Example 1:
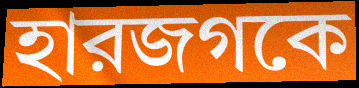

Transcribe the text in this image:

হারজগকে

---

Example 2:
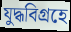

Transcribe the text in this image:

যুদ্ধবিগ্রহে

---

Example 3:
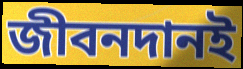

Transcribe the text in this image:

জীবনদানই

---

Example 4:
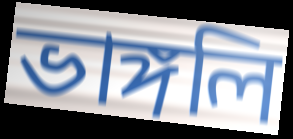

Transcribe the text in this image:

ভাঙ্গলি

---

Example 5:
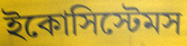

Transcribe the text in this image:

ইকোসিস্টেমস